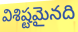
విశిష్టమైనది